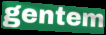
gentem